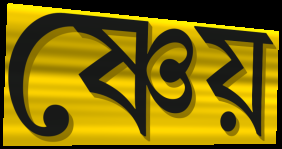
ষ্ণেয়